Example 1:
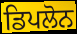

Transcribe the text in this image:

ਡਿਪਲੋਨ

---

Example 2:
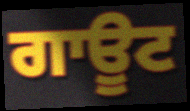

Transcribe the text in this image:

ਗਾਊਟ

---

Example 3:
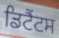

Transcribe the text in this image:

ਡਿਟੈਂਟਸ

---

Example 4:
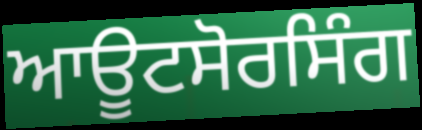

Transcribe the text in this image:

ਆਊਟਸੋਰਸਿੰਗ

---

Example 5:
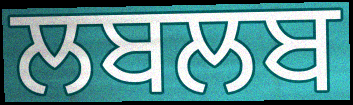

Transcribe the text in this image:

ਲਬਲਬ